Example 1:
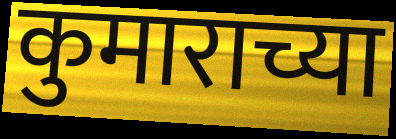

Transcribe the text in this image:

कुमाराच्या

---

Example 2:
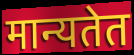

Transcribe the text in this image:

मान्यतेत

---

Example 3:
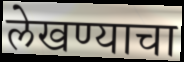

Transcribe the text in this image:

लेखण्याचा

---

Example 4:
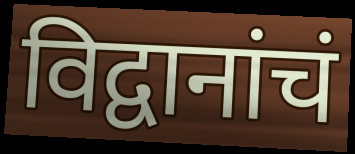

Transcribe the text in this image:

विद्वानांचं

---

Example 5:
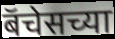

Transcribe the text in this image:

बॅचेसच्या